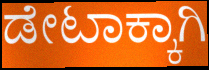
ಡೇಟಾಕ್ಕಾಗಿ